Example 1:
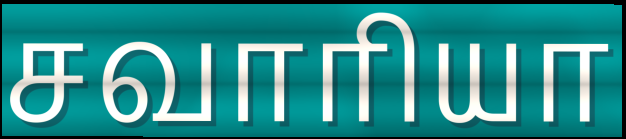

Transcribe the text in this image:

சவாரியா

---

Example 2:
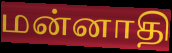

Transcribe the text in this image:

மன்னாதி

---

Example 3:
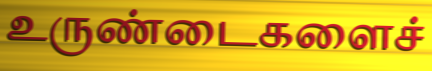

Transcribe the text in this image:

உருண்டைகளைச்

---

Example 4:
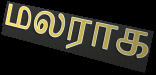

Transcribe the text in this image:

மலராக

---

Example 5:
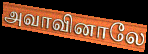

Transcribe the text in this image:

அவாவினாலே